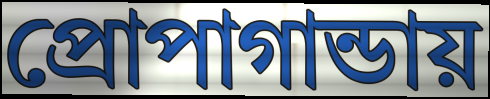
প্রোপাগান্ডায়